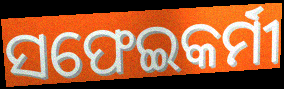
ସଫେଇକର୍ମୀ